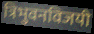
त्रिभुवनविजयी